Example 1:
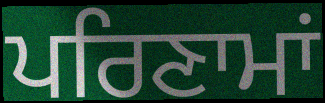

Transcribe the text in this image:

ਪਰਿਣਾਮਾਂ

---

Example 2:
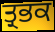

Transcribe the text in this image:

ਤ੍ਰਭਕ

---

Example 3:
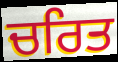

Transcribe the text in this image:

ਚਰਿਤ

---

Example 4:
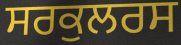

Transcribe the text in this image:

ਸਰਕੁਲਰਸ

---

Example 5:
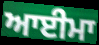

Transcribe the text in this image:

ਆਈਮਾ